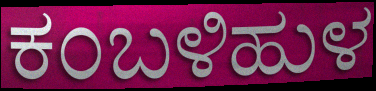
ಕಂಬಳಿಹುಳ